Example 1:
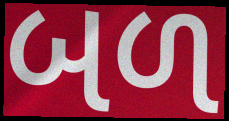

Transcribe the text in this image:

બળ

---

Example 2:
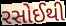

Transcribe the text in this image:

રસોઈથી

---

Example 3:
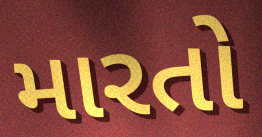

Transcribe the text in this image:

મારતો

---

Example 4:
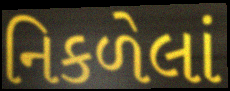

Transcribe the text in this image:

નિકળેલાં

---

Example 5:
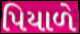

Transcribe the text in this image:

પિયાળે